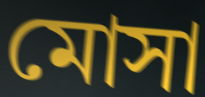
মোসা